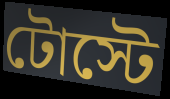
টোস্টে